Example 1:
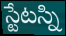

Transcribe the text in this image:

స్టేటస్ని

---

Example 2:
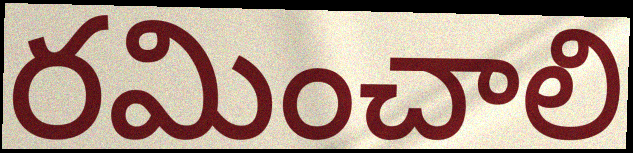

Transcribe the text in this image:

రమించాలి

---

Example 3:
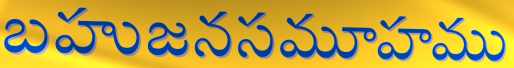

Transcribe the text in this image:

బహుజనసమూహము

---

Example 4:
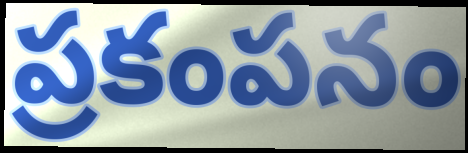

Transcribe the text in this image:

ప్రకంపనం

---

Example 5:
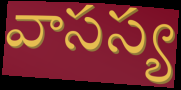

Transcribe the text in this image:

వాసస్య